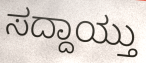
ಸದ್ದಾಯ್ತು